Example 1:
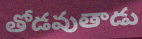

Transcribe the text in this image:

తోడవుతాడు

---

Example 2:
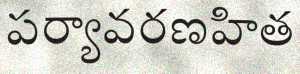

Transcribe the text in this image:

పర్యావరణహిత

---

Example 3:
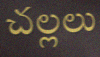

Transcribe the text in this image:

చల్లలు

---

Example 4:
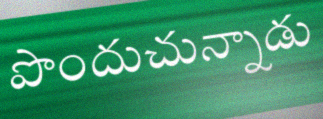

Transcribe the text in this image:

పొందుచున్నాడు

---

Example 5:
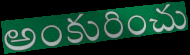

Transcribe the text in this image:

అంకురించు